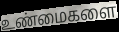
உண்மைகளை